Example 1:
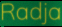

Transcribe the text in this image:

Radja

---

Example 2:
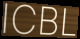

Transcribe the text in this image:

ICBL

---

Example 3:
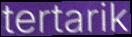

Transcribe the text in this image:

tertarik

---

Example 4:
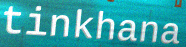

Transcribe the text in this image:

tinkhana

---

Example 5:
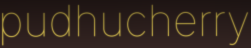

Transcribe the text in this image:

pudhucherry